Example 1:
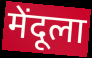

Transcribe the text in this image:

मेंदूला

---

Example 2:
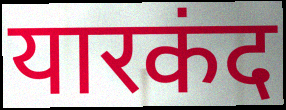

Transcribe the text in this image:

यारकंद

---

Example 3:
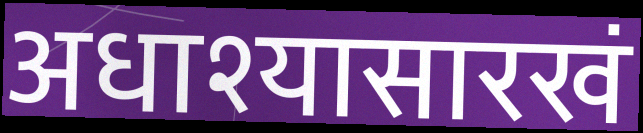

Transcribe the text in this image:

अधाश्यासारखं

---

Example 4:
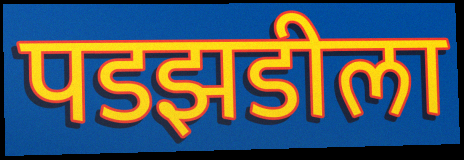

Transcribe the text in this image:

पडझडीला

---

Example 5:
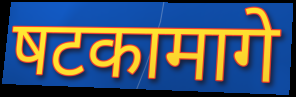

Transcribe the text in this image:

षटकामागे